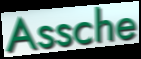
Assche